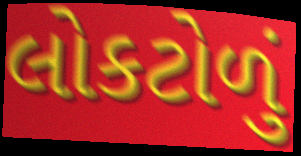
લોકટોળું